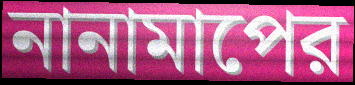
নানামাপের